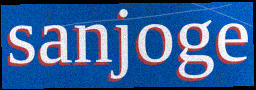
sanjoge